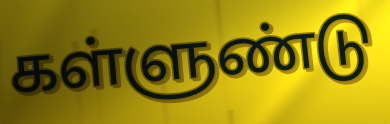
கள்ளுண்டு